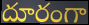
దూరంగా